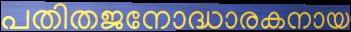
പതിതജനോദ്ധാരകനായ